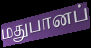
மதுபானப்